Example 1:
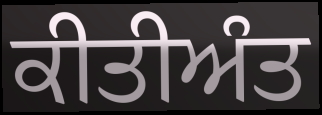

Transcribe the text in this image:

ਕੀਤੀਅੰਤ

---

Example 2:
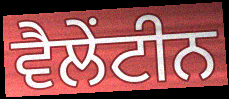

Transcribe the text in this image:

ਵੈਲੇਂਟੀਨ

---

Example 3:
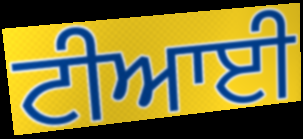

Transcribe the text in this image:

ਟੀਆਈ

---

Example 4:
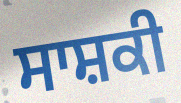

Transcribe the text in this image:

ਸਾਸ਼ਕੀ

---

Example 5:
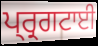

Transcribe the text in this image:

ਪ੍ਰ੍ਰਗਟਾਈ